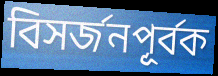
বিসর্জনপূর্বক